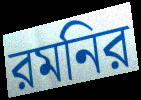
রমনির